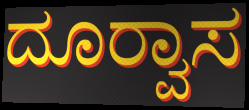
ದೂರ‍್ವಾಸ